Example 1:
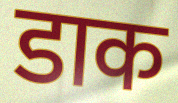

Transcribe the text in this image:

डाक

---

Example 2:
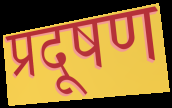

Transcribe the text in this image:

प्रदूषण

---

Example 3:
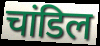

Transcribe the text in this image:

चांडिल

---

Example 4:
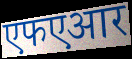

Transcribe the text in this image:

एफएआर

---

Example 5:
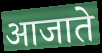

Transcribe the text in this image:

आजाते